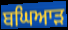
ਬਘਿਆੜ